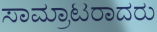
ಸಾಮ್ರಾಟರಾದರು